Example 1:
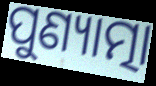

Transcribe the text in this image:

ପୁଣ୍ୟାତ୍ମା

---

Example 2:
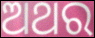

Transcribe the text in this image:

ଅଥର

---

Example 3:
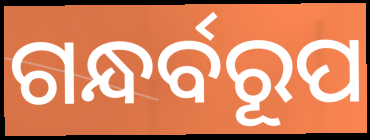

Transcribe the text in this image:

ଗନ୍ଧର୍ବରୂପ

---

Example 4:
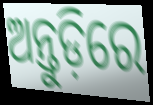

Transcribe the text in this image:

ଅନ୍ତୁଡ଼ିରେ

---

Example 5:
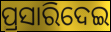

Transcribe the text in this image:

ପ୍ରସାରିଦେଇ